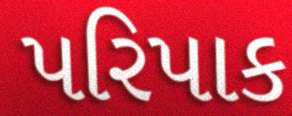
પરિપાક